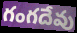
గంగదేవు